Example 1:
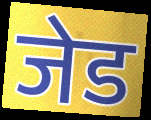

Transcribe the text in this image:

जेड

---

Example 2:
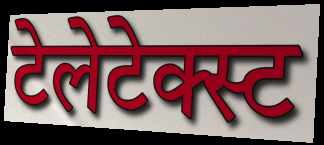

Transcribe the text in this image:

टेलेटेक्स्ट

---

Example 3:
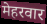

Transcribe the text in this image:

मेहरवार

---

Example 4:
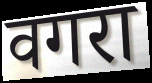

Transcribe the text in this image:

वगरा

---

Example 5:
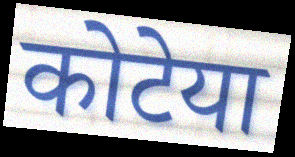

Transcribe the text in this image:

कोटेया